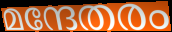
മന്ദേതരം